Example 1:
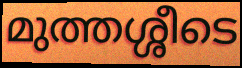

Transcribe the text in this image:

മുത്തശ്ശീടെ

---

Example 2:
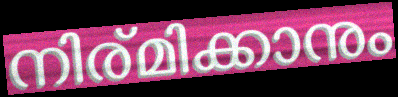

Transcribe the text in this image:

നിര്മിക്കാനും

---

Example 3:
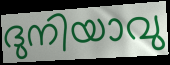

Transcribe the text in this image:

ദുനിയാവു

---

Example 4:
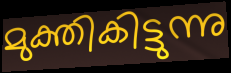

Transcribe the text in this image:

മുക്തികിട്ടുന്നു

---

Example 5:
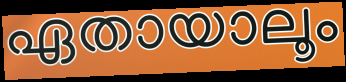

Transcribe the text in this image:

ഏതായാലൂം